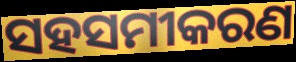
ସହସମୀକରଣ